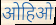
ओहिओ